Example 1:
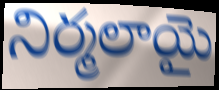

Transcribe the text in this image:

నిర్మలాయై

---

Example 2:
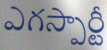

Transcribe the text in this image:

ఎగస్పార్టీ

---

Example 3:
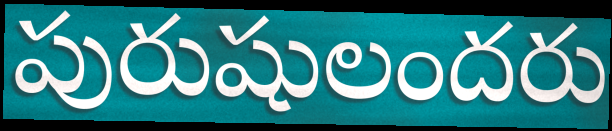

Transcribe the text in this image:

పురుషులందరు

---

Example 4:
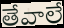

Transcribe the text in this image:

తేవాలే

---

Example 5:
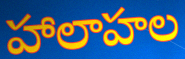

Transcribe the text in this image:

హాలాహల